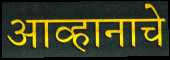
आव्हानाचे